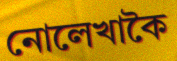
নোলেখাকৈ